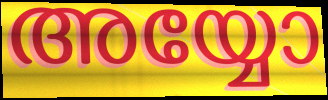
അയ്യോ